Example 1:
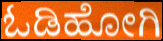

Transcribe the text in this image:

ಓಡಿಹೋಗಿ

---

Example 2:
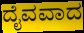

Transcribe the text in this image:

ದೈವವಾದ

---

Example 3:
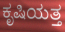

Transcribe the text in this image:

ಕೃಷಿಯತ್ತ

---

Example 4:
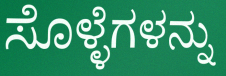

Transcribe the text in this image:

ಸೊಳ್ಳೆಗಳನ್ನು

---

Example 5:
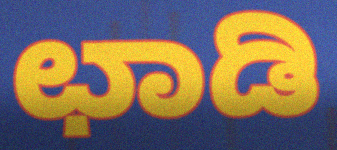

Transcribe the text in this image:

ಛಾಡಿ